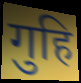
गुहि